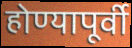
होण्यापूर्वी